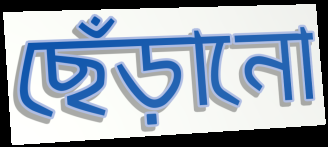
ছেঁড়ানো